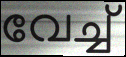
വേച്ച്